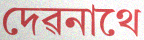
দেৱনাথে